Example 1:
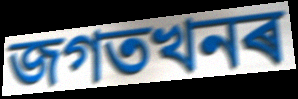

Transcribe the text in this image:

জগতখনৰ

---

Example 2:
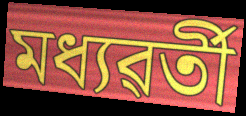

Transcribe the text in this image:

মধ্যৱৰ্তী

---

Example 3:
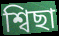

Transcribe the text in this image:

শ্বিছা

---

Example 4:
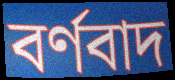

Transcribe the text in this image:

বৰ্ণবাদ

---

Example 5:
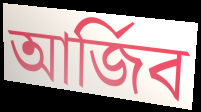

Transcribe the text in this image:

আৰ্জিব